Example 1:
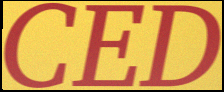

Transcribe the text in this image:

CED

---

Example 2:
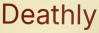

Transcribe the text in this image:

Deathly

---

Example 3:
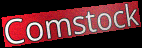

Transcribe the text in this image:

Comstock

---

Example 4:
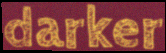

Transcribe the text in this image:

darker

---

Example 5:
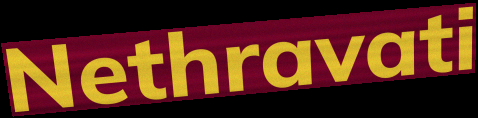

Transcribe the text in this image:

Nethravati